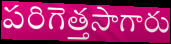
పరిగెత్తసాగారు